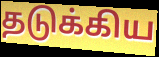
தடுக்கிய